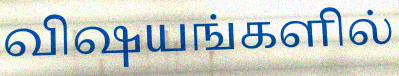
விஷயங்களில்